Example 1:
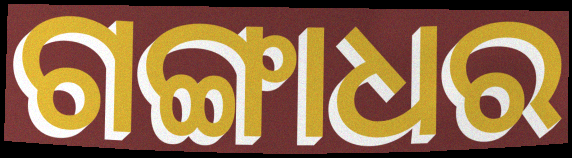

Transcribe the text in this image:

ଗଙ୍ଗାଧର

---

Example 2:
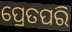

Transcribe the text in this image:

ପ୍ରେତପରି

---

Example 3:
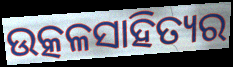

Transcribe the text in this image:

ଉତ୍କଳସାହିତ୍ୟର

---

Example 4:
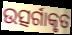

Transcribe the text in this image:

ଉତ୍ସର୍ଗାକୃତ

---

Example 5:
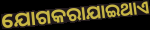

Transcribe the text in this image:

ଯୋଗକରାଯାଇଥାଏ